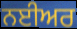
ਨਈਅਰ